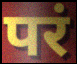
परं